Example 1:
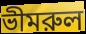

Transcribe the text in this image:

ভীমরুল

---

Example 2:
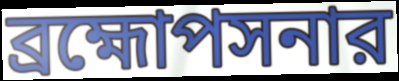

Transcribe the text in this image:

ব্রহ্মোপসনার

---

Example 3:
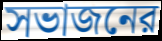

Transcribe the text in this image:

সভাজনের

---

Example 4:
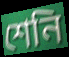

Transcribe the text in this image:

শেনি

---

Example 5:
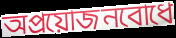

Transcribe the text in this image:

অপ্রয়োজনবোধে